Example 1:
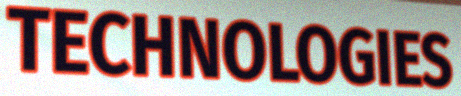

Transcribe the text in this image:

TECHNOLOGIES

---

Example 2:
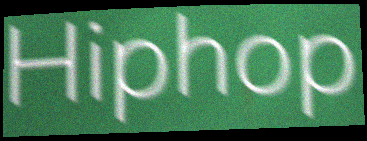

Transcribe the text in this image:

Hiphop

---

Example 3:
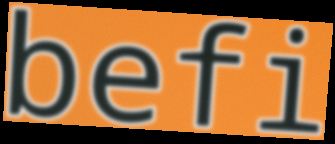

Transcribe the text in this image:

befi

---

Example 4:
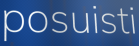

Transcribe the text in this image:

posuisti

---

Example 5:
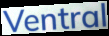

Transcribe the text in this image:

Ventral